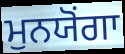
ਮੁਨਯੋਂਗਾ